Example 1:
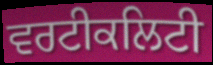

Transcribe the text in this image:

ਵਰਟੀਕਲਿਟੀ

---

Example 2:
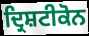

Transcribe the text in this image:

ਦ੍ਰਿਸ਼ਟੀਕੋਨ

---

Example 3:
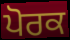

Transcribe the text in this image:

ਪੋਰਕ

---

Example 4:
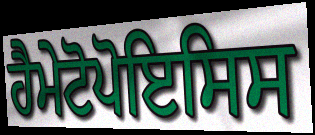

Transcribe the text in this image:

ਹੈਮੇਟੋਪੋਇਸਿਸ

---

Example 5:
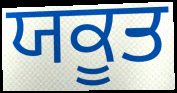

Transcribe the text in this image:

ਯਕੂਤ